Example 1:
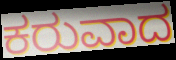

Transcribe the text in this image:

ಕರುವಾದ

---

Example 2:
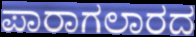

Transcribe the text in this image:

ಪಾರಾಗಲಾರದ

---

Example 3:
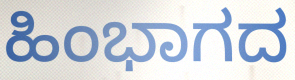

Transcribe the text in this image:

ಹಿಂಭಾಗದ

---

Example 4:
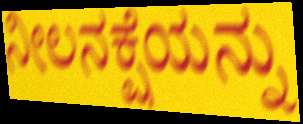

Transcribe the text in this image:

ನೀಲನಕ್ಷೆಯನ್ನು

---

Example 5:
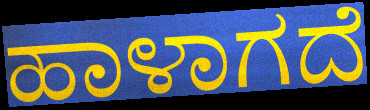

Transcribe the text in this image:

ಹಾಳಾಗದೆ